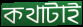
কথাটাই